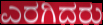
ಎರಗಿದರು